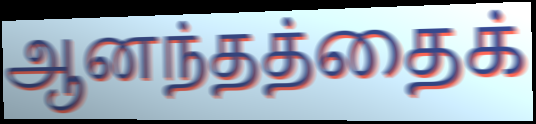
ஆனந்தத்தைக்